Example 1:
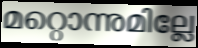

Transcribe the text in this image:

മറ്റൊന്നുമില്ലേ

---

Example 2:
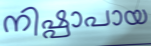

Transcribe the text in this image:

നിഷ്പാപായ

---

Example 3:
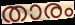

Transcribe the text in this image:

താരം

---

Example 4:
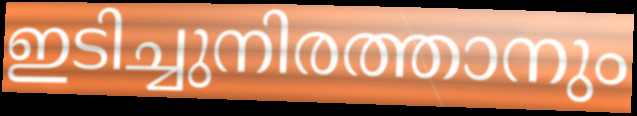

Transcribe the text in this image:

ഇടിച്ചുനിരത്താനും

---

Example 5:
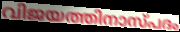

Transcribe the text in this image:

വിജയത്തിനാസ്പദം